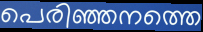
പെരിഞ്ഞനത്തെ